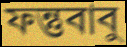
ফন্তুবাবু